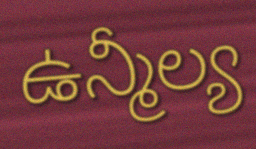
ఉన్మీల్య